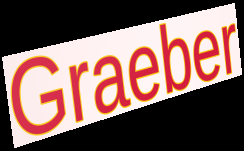
Graeber